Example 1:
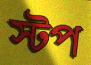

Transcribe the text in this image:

স্টপ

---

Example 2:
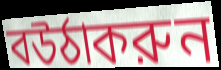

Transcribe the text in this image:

বউঠাকরুন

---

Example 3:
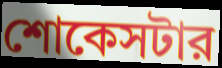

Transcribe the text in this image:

শোকেসটার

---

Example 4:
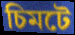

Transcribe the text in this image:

চিমটে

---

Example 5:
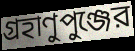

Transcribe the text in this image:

গ্রহাণুপুঞ্জের